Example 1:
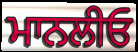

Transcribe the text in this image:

ਮਾਨਲੀਓ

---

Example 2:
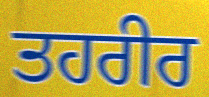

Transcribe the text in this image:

ਤਹਰੀਰ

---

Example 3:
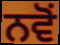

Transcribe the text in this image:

ਨਵੋਂ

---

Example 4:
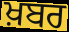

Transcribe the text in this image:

ਖ਼ਬਰ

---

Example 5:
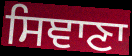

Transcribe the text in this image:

ਸਿਞਾਣਾ